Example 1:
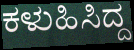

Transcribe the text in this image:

ಕಳುಹಿಸಿದ್ದ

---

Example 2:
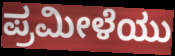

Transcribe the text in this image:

ಪ್ರಮೀಳೆಯು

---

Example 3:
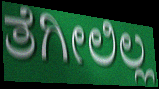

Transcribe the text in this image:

ತೆಗೀಲಿಲ್ಲ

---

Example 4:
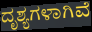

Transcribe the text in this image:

ದೃಶ್ಯಗಳಾಗಿವೆ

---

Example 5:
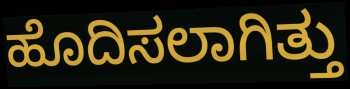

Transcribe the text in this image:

ಹೊದಿಸಲಾಗಿತ್ತು